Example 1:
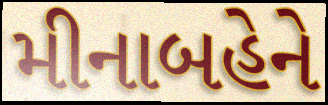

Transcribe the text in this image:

મીનાબહેને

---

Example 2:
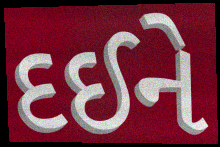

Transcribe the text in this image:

દઈને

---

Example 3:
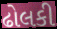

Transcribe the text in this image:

ઢોલકી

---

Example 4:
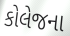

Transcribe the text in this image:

કોલેજના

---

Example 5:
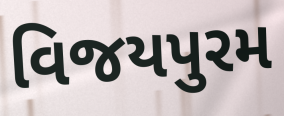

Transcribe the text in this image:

વિજયપુરમ